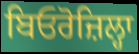
ਬਿਓਰੋਜ਼ਿਲ੍ਹਾ